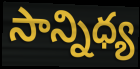
సాన్నిధ్య